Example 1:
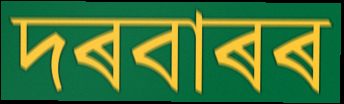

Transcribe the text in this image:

দৰবাৰৰ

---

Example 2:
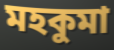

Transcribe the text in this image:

মহকুমা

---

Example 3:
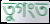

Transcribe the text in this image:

তুগংত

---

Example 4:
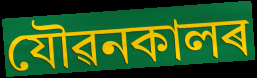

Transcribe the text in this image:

যৌৱনকালৰ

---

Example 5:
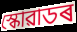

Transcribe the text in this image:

স্কোৱাডৰ